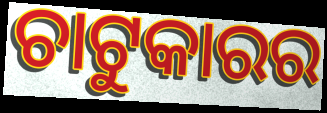
ଚାଟୁକାରର